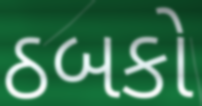
ઠબકો